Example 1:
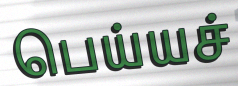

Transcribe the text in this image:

பெய்யச்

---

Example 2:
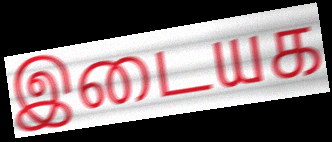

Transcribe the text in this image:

இடையக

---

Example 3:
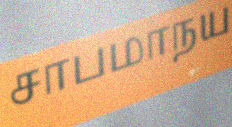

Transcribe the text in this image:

சாபமாநய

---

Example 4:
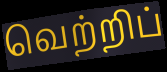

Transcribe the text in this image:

வெற்றிப்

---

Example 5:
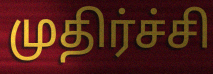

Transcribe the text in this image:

முதிர்ச்சி